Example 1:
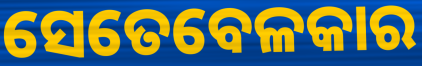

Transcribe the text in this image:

ସେତେବେଳକାର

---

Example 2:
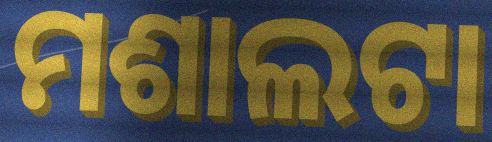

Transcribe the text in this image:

ମଶାଲଟା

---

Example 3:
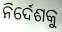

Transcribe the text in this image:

ନିର୍ଦେଶକୁ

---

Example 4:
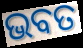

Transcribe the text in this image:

ଭବତ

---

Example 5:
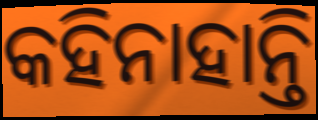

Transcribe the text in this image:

କହିନାହାନ୍ତି